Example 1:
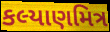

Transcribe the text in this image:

કલ્યાણમિત્ર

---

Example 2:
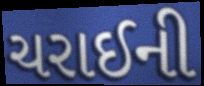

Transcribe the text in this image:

ચરાઈની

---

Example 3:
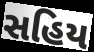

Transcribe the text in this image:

સહિય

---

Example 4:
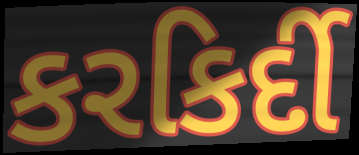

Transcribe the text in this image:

કરકિર્દી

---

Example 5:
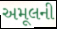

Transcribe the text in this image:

અમૂલની